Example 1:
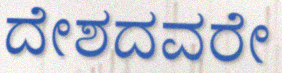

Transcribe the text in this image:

ದೇಶದವರೇ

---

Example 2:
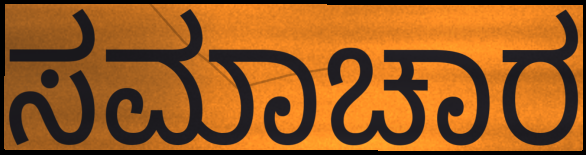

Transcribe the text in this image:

ಸಮಾಚಾರ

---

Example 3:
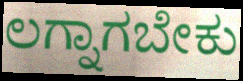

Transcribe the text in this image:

ಲಗ್ನಾಗಬೇಕು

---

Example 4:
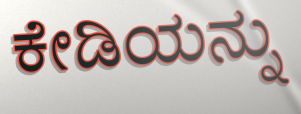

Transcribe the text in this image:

ಕೇಡಿಯನ್ನು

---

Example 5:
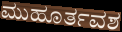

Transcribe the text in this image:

ಮುಹೂರ್ತವಶ